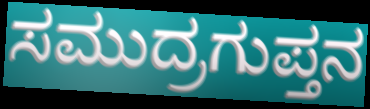
ಸಮುದ್ರಗುಪ್ತನ